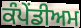
ਕੰਪੇਂਡੀਅਮ